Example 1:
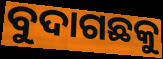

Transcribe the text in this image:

ବୁଦାଗଛକୁ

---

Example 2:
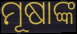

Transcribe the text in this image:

ମୂଷାଙ୍କ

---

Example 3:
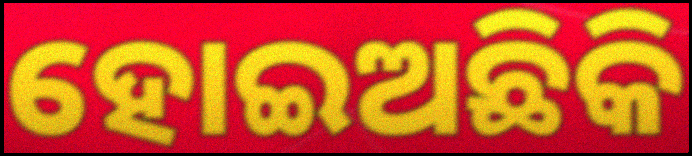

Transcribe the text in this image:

ହୋଇଅଛିକି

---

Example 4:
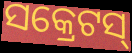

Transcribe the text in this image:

ସକ୍ରେଟସ୍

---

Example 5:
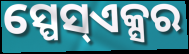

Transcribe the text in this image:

ସ୍ପେସ୍ଏକ୍ସର